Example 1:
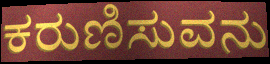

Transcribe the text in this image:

ಕರುಣಿಸುವನು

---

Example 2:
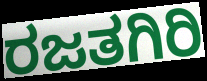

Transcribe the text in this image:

ರಜತಗಿರಿ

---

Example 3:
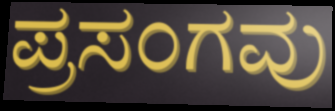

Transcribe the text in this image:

ಪ್ರಸಂಗವು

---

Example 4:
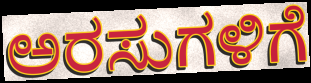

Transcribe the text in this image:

ಅರಸುಗಳಿಗೆ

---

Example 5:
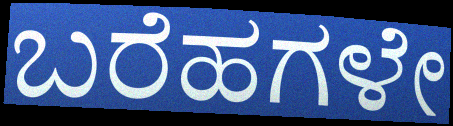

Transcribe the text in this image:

ಬರೆಹಗಳೇ